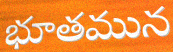
భూతమున